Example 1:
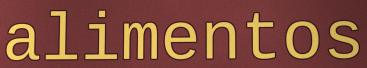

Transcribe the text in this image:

alimentos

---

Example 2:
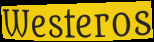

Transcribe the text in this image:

Westeros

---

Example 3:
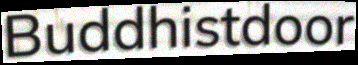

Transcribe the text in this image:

Buddhistdoor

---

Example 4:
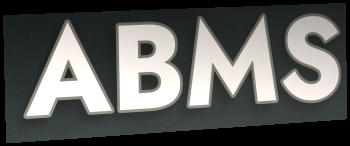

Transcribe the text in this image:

ABMS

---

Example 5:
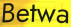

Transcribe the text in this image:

Betwa